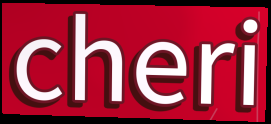
cheri